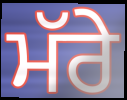
ਮੱਰੇ